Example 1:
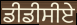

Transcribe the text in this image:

ਡੀਡੀਸੀਏ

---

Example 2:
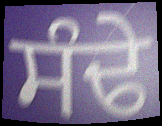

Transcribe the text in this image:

ਸੰਢੇ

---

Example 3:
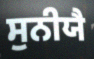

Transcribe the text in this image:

ਸੁਨੀਯੈ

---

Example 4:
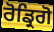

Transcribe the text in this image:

ਰੋਡ੍ਰਿਗੋ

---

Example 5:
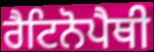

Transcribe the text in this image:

ਰੈਟਿਨੋਪੈਥੀ